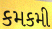
કમકમી